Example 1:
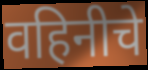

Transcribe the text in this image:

वहिनीचे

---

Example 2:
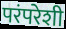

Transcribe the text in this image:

परंपरेशी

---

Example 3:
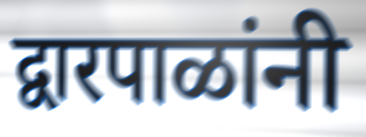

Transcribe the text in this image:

द्वारपाळांनी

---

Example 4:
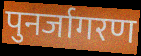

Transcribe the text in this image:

पुनर्जागरण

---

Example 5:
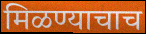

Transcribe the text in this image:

मिळण्याचाच